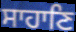
ਸਾਹਾਣਿ